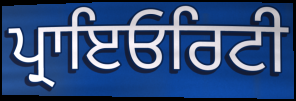
ਪ੍ਰਾਇਓਰਿਟੀ